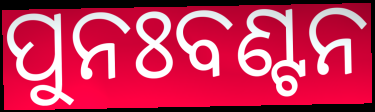
ପୁନଃବଣ୍ଟନ